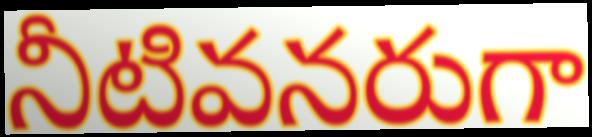
నీటివనరుగా